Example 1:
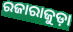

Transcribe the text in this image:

ରଜାରାଜୁଡ଼ା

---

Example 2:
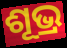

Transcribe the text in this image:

ଶୂଭ୍ର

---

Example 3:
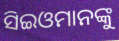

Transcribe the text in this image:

ସିଇଓମାନଙ୍କୁ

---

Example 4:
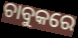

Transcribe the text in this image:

ଚାବୁକରେ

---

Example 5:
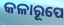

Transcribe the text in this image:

କଳାରୂପେ